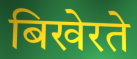
बिखेरते